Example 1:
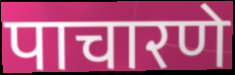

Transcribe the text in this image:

पाचारणे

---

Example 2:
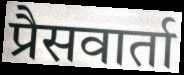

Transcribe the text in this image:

प्रैसवार्ता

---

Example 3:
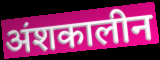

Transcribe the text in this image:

अंशकालीन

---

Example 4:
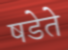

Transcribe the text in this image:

षडेते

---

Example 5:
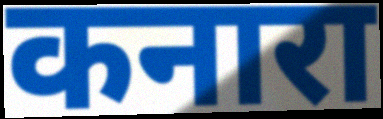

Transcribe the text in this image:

कनारा